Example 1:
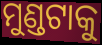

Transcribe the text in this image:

ମୁଣ୍ଡଟାକୁ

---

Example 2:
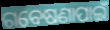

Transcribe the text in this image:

ଗବେଷଣାପାଇଁ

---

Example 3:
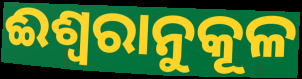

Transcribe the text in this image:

ଈଶ୍ଵରାନୁକୂଳ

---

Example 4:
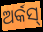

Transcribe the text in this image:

ଅର୍କସ୍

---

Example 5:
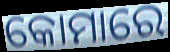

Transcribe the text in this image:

କୋମାରେ